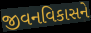
જીવનવિકાસને